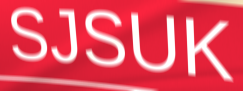
SJSUK